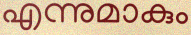
എന്നുമാകും